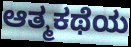
ಆತ್ಮಕಥೆಯ